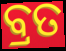
ବ୍ରତ